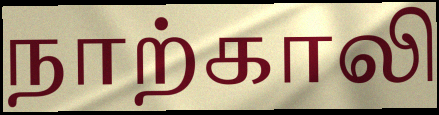
நாற்காலி